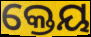
କ୍ତେୟ